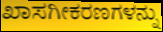
ಖಾಸಗೀಕರಣಗಳನ್ನು